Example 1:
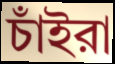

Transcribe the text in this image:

চাঁইরা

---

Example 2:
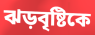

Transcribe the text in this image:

ঝড়বৃষ্টিকে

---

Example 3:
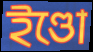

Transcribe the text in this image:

ইণ্ডো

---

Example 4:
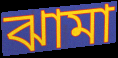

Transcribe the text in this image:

ঝামা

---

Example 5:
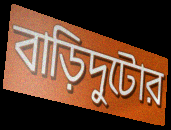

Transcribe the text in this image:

বাড়িদুটোর